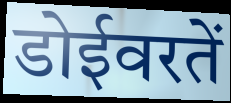
डोईवरतें